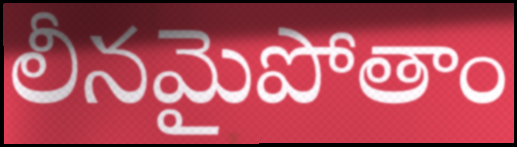
లీనమైపోతాం